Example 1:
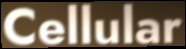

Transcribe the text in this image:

Cellular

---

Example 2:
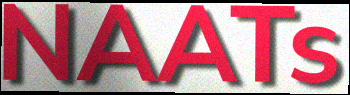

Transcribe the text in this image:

NAATs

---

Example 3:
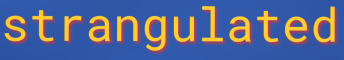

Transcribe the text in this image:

strangulated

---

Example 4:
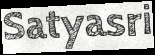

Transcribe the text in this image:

Satyasri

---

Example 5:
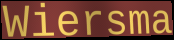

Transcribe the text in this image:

Wiersma